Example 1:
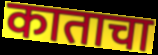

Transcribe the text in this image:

काताचा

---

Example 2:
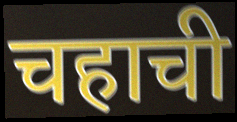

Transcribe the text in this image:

चहाची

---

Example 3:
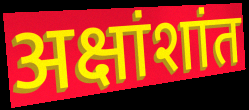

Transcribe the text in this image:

अक्षांशांत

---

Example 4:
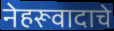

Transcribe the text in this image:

नेहरूवादाचे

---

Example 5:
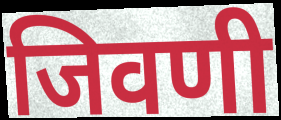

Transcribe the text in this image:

जिवणी